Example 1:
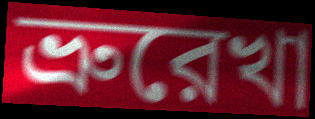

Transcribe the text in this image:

ভ্রুরেখা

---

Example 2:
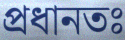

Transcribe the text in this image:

প্রধানতঃ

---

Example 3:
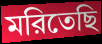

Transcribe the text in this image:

মরিতেছি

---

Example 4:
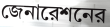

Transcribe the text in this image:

জেনারেশনের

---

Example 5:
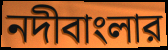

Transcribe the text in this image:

নদীবাংলার